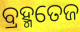
ବ୍ରହ୍ମତେଜ